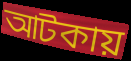
আটকায়